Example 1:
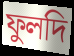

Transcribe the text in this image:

ফুলদি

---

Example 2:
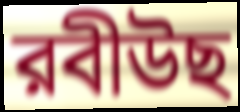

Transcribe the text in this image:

রবীউছ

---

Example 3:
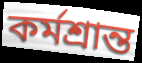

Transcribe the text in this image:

কর্মশ্রান্ত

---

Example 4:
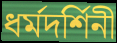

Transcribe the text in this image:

ধর্মদর্শিনী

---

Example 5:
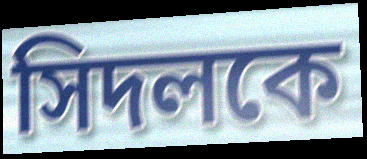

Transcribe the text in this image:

সিদলকে